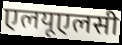
एलयूएलसी